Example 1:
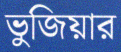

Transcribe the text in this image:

ভুজিয়ার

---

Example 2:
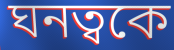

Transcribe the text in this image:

ঘনত্বকে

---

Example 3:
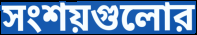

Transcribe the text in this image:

সংশয়গুলোর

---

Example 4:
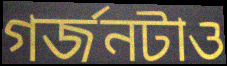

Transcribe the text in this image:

গর্জনটাও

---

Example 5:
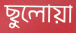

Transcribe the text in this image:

ছুলোয়া